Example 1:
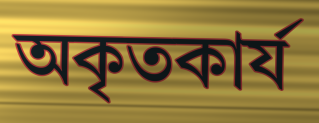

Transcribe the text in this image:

অকৃতকার্য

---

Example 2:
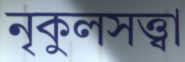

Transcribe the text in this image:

নৃকুলসত্ত্বা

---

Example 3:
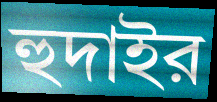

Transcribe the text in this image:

হুদাইর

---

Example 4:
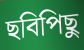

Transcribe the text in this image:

ছবিপিছু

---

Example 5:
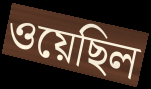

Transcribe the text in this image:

ওয়েছিল